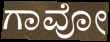
ಗಾವೋ